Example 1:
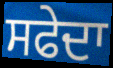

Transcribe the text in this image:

ਸਫੇਦਾ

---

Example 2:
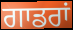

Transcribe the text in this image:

ਗਾਡਰਾਂ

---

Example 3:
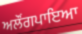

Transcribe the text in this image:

ਅਲੌਂਗਪਾਇਆ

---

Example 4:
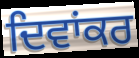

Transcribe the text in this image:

ਦਿਵਾਂਕਰ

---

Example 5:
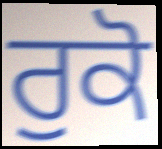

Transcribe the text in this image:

ਰੁਕੋ